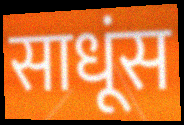
साधूंस